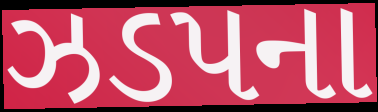
ઝડપના